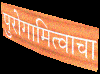
पुरोगामित्वाचा